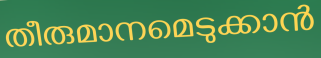
തീരുമാനമെടുക്കാൻ